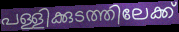
പള്ളിക്കുടത്തിലേക്ക്